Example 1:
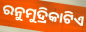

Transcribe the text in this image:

ରନୁମୁଦ୍ରିକାଟିଏ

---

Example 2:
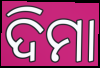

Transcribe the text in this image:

ଦିମା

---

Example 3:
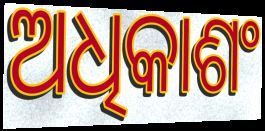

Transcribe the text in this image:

ଅଧିକାଶଂ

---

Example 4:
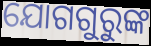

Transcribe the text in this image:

ଯୋଗଗୁରୁଙ୍କ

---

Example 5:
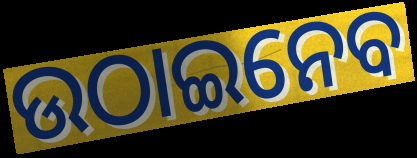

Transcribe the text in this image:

ଉଠାଇନେବ